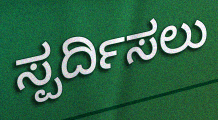
ಸ್ಪರ್ದಿಸಲು